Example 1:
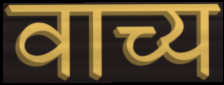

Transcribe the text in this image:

वाच्य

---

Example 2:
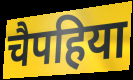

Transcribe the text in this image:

चैपहिया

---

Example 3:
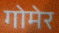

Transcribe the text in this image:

गोमेर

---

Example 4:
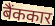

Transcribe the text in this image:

बैंककार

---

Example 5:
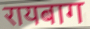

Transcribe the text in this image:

रायबाग